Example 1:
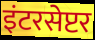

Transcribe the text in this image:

इंटरसेप्टर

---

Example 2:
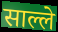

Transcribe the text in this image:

साल्ले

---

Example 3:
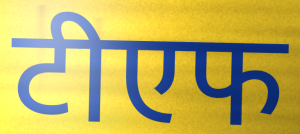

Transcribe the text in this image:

टीएफ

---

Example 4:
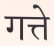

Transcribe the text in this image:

गत्ते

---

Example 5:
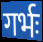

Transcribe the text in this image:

गर्भः